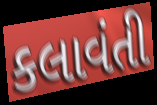
કલાવંતી